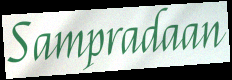
Sampradaan